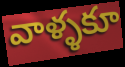
వాళ్ళకూ